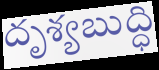
దృశ్యబుద్ధి